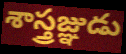
శాస్త్రజ్ఞుడు